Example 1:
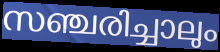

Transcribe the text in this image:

സഞ്ചരിച്ചാലും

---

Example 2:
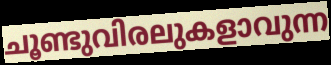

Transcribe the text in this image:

ചൂണ്ടുവിരലുകളാവുന്ന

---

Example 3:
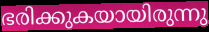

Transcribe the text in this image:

ഭരിക്കുകയായിരുന്നു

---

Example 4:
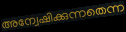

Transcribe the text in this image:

അന്വേഷിക്കുന്നതെന്ന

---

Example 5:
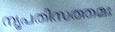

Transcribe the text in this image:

നൃപതിസത്തമഃ